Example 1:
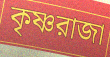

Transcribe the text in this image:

কৃষ্ণরাজা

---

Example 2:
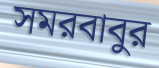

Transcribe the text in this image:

সমরবাবুর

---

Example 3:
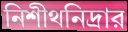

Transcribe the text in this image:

নিশীথনিদ্রার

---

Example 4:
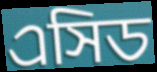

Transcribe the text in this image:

এসিড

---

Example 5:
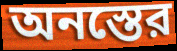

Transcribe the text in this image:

অনস্তের